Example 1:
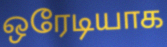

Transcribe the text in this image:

ஒரேடியாக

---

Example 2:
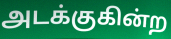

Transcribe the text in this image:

அடக்குகின்ற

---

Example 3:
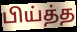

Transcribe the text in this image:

பிய்த்த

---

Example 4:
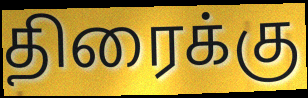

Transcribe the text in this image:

திரைக்கு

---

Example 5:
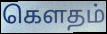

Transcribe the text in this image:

கௌதம்